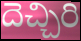
దెచ్చిరి